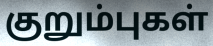
குறும்புகள்